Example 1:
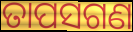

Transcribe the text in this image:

ତାପସଗଣ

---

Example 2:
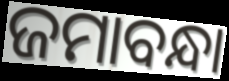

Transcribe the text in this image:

ଜମାବନ୍ଧା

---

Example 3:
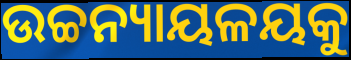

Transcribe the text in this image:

ଉଚ୍ଚନ୍ୟାୟଳୟକୁ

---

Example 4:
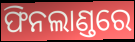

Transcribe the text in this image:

ଫିନଲାଣ୍ଡରେ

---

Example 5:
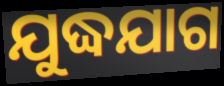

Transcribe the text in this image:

ଯୁଦ୍ଧଯାଗ